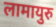
लामायुरु